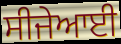
ਸੀਜੇਆਈ